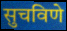
सुचविणे